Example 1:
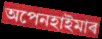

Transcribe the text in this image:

অপেনহাইমাৰ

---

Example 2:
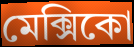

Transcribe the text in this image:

মেক্সিকো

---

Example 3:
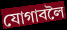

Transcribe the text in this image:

যোগাবলৈ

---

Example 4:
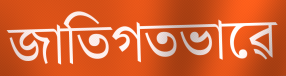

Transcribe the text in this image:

জাতিগতভাৱে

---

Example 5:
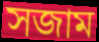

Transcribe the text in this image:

সজাম